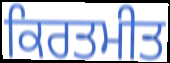
ਕਿਰਤਮੀਤ